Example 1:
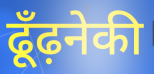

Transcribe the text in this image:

ढूँढ़नेकी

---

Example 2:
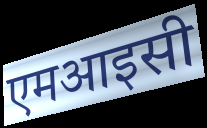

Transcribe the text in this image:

एमआइसी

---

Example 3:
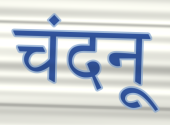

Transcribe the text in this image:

चंदनू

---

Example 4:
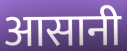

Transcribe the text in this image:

आसानी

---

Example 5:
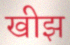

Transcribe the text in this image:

खीझ